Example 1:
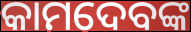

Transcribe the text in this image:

କାମଦେବଙ୍କ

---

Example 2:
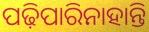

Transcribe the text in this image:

ପଢ଼ିପାରିନାହାନ୍ତି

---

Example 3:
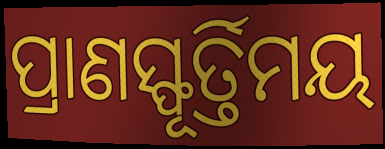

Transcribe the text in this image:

ପ୍ରାଣସ୍ଫୂର୍ତ୍ତିମୟ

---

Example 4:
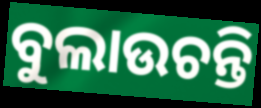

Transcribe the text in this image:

ବୁଲାଉଚନ୍ତି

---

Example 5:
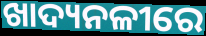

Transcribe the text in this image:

ଖାଦ୍ୟନଳୀରେ